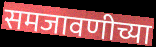
समजावणीच्या